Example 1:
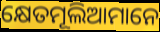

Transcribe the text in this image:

କ୍ଷେତମୂଲିଆମାନେ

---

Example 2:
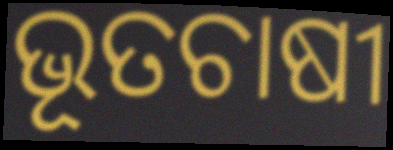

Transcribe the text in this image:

ଭୂତଚାଷୀ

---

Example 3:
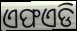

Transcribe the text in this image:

ଏଫଏଡି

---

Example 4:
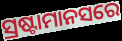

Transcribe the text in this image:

ସ୍ରଷ୍ଟାମାନସରେ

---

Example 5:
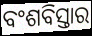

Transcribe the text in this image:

ବଂଶବିସ୍ତାର